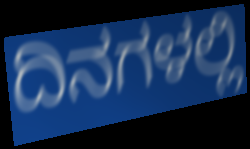
ದಿನಗಳಲ್ಲಿ